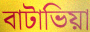
বাটাভিয়া